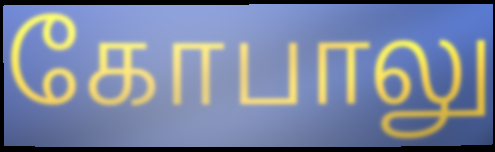
கோபாலு